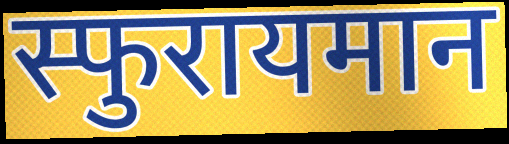
स्फुरायमान